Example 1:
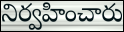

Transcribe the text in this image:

నిర్వహించారు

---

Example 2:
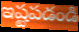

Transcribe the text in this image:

ఇష్టపడండి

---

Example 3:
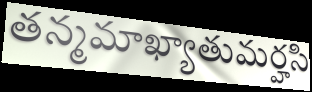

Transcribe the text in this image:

తన్మమాఖ్యాతుమర్హసి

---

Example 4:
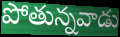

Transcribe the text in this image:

పోతున్నవాడు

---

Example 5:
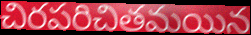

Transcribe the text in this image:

చిరపరిచితమయిన